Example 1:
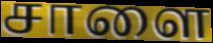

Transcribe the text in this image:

சாளை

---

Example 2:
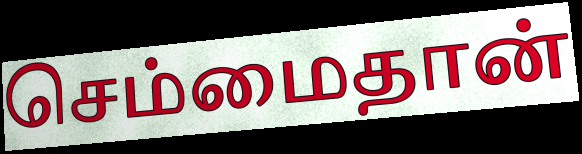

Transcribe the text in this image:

செம்மைதான்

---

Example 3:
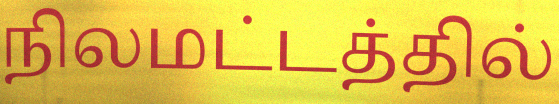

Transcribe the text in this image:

நிலமட்டத்தில்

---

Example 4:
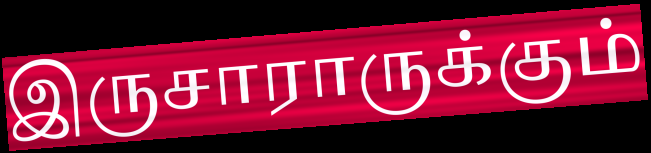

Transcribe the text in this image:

இருசாராருக்கும்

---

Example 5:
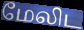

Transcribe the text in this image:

மேலிட